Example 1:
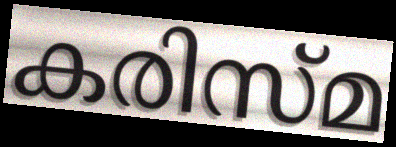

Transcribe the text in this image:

കരിസ്മ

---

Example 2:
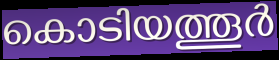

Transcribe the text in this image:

കൊടിയത്തൂർ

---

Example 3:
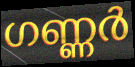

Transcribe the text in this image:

ഗണ്ണർ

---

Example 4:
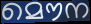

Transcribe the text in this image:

മൌന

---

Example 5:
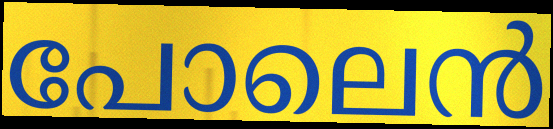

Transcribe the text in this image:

പോലെൻ